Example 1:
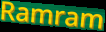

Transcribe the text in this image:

Ramram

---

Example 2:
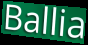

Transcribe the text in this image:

Ballia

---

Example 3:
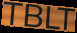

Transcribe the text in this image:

TBLT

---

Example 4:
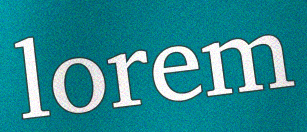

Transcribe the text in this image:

lorem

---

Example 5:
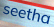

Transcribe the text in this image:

seetha